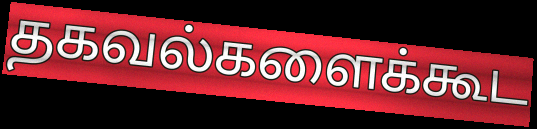
தகவல்களைக்கூட